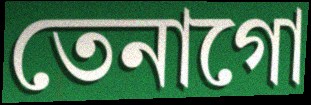
তেনাগো